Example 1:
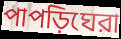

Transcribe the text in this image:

পাপড়িঘেরা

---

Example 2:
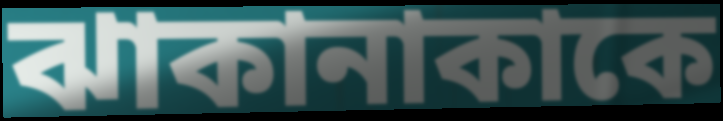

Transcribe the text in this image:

ঝাকানাকাকে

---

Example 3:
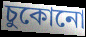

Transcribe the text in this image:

চুকোনো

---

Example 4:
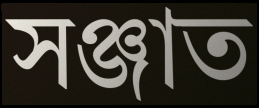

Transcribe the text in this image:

সঞ্জাত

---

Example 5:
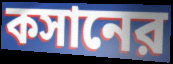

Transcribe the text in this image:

কসানের